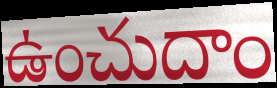
ఉంచుదాం